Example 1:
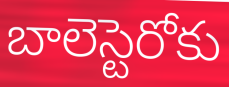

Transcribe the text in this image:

బాలెస్టెరోకు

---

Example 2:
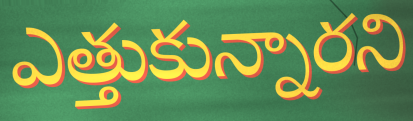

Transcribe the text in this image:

ఎత్తుకున్నారని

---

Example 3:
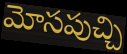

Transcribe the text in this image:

మోసపుచ్చి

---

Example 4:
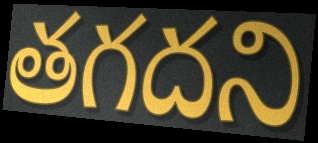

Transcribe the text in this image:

తగదని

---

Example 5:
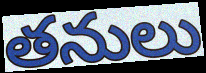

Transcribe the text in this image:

తనులు